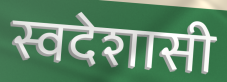
स्वदेशासी